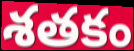
శతకం